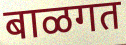
बाळगत